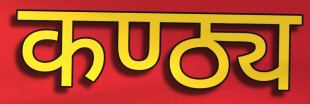
कण्ठ्य